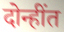
दोन्हींत